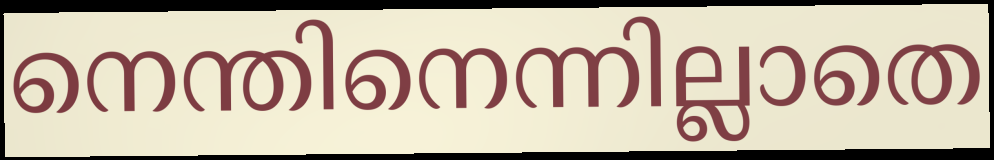
നെന്തിനെന്നില്ലാതെ